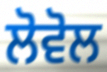
ਲੋਵੋਲ